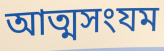
আত্মসংযম